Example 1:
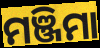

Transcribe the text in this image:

ମଞ୍ଜିମା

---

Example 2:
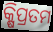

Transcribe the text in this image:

କ୍ଷିପ୍ରତମ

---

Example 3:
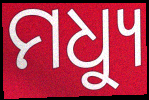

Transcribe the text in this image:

ମଧ୍ୟୁ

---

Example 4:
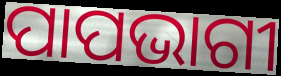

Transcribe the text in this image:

ପାପଭାଗୀ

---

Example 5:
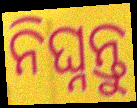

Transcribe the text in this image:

ନିଘ୍ନନ୍ତୁ